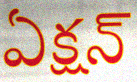
ఏక్షన్